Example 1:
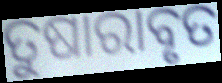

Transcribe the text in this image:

ତୁଷାରାବୃତ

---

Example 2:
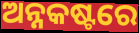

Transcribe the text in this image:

ଅନ୍ନକଷ୍ଟରେ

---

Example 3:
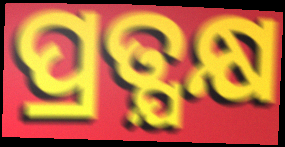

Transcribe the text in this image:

ପ୍ରତ୍ଯକ୍ଷ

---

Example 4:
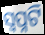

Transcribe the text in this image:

ସ୍ୱପ୍ନଟି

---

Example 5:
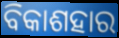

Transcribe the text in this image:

ବିକାଶହାର